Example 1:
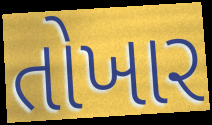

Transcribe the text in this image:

તોખાર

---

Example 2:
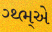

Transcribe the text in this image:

ગ્થ્ભ્એ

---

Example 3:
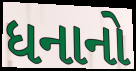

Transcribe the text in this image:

ધનાનો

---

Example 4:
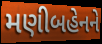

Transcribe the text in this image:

મણીબહેનને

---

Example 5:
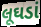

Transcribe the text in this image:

લૂઘડાં